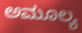
ಅಮೂಲ್ಯ